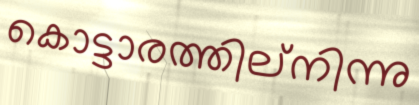
കൊട്ടാരത്തില്നിന്നു